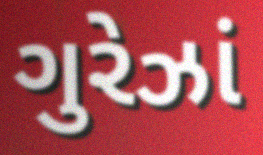
ગુરેઝાં